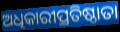
ଅଧିକାରୀପ୍ରତିଷ୍ଠାତା